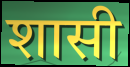
शासी